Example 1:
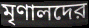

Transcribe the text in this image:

মৃণালদের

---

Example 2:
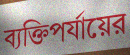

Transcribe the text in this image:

ব্যক্তিপর্যায়ের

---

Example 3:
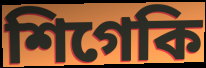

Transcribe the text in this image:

শিগেকি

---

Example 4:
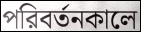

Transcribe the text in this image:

পরিবর্তনকালে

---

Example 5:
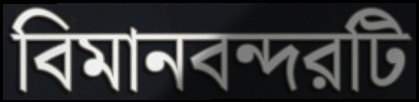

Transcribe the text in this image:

বিমানবন্দরটি